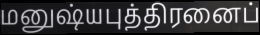
மனுஷ்யபுத்திரனைப்